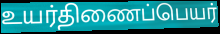
உயர்திணைப்பெயர்